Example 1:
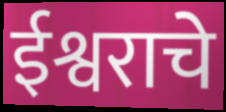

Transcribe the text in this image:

ईश्वराचे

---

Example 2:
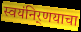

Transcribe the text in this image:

स्वयंनिर्णयाचा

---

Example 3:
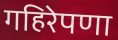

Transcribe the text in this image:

गहिरेपणा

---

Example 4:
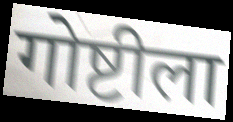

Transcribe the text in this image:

गोष्टीला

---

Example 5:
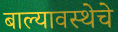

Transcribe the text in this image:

बाल्यावस्थेचे